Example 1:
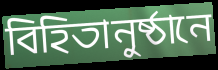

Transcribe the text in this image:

বিহিতানুষ্ঠানে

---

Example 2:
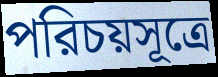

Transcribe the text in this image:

পরিচয়সূত্রে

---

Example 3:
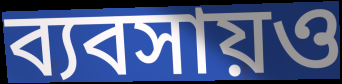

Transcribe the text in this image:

ব্যবসায়ও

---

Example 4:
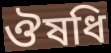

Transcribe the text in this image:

ঔষধি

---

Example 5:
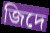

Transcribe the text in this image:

জিদে